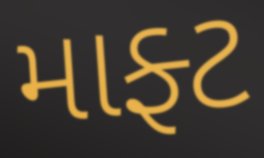
માફ્ટ